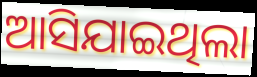
ଆସିଯାଇଥିଲା